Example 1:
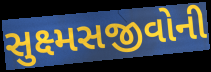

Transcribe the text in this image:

સુક્ષ્મસજીવોની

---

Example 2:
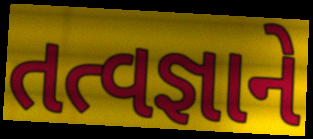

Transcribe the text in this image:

તત્વજ્ઞાને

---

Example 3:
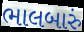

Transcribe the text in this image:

ભાલબારું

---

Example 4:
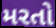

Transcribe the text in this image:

મરતો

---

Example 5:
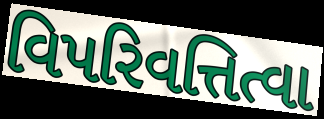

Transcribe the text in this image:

વિપરિવત્તિત્વા